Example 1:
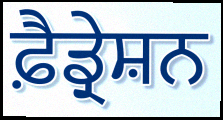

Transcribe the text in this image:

ਫ਼ੈਡ੍ਰੇਸ਼ਨ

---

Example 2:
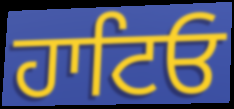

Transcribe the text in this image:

ਹਾਟਿਓ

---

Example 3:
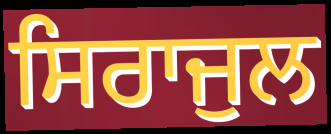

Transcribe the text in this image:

ਸਿਰਾਜੁਲ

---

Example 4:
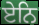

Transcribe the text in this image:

ਏਨਿ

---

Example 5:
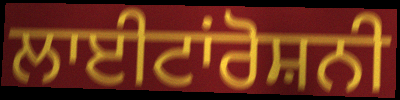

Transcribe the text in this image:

ਲਾਈਟਾਂਰੋਸ਼ਨੀ